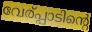
വേര്പ്പാടിന്റെ